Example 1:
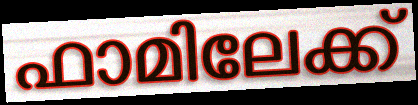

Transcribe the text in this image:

ഫാമിലേക്ക്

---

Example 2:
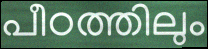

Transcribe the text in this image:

പീഠത്തിലും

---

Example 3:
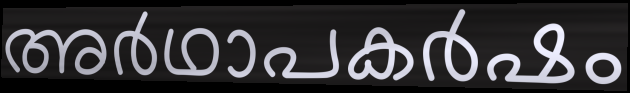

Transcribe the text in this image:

അർഥാപകർഷം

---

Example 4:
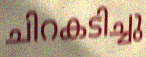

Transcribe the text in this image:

ചിറകടിച്ചു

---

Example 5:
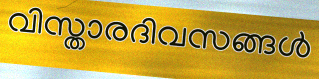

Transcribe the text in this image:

വിസ്താരദിവസങ്ങൾ